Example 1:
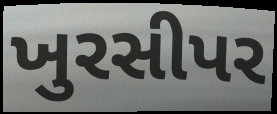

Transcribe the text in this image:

ખુરસીપર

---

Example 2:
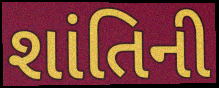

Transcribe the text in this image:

શાંતિની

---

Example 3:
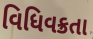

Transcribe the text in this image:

વિધિવક્રતા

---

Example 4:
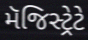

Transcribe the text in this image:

મૅજિસ્ટ્રેટે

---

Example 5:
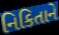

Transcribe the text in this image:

નિકિતાને